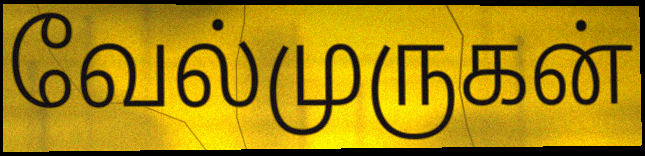
வேல்முருகன்